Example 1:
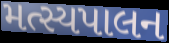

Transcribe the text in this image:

મત્સ્યપાલન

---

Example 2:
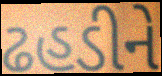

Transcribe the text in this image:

ઢહડીને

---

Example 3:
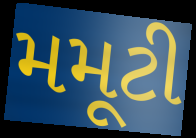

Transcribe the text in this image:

મમૂટી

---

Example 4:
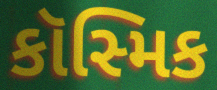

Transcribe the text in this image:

કૉસ્મિક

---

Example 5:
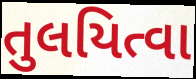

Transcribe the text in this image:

તુલયિત્વા